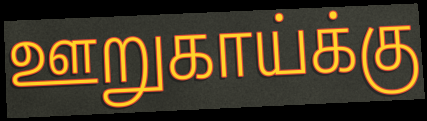
ஊறுகாய்க்கு